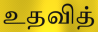
உதவித்